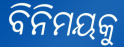
ବିନିମୟକୁ